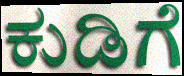
ಕುಡಿಗೆ